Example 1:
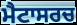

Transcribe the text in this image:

ਮੈਟਾਸਰਚ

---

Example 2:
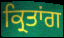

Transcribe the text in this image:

ਕ੍ਰਿਤਾਂਗ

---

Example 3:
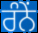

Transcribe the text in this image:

ਰੰਨੇਂ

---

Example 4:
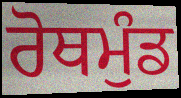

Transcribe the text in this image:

ਰੋਥਮੁੰਡ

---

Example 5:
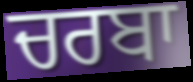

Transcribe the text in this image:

ਚਰਬਾ